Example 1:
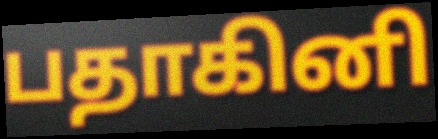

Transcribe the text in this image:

பதாகினி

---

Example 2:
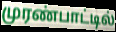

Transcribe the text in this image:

முரண்பாட்டில்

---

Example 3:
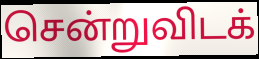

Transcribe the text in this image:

சென்றுவிடக்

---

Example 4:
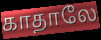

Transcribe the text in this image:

காதாலே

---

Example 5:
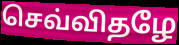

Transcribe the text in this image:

செவ்விதழே